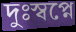
দুঃস্বপ্নে